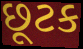
છૂટક